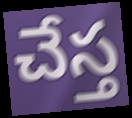
చేస్త